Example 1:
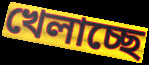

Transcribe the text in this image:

খেলাচ্ছে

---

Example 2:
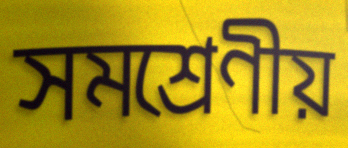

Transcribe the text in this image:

সমশ্রেণীয়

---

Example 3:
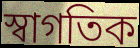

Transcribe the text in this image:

স্বাগতিক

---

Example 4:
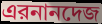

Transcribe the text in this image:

এরনানদেজ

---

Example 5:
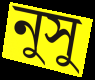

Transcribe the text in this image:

নুসু